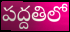
పద్దతిలో